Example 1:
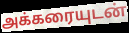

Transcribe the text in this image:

அக்கரையுடன்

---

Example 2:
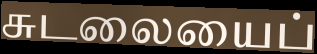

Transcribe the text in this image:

சுடலையைப்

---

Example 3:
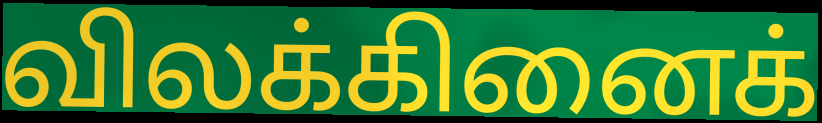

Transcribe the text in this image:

விலக்கினைக்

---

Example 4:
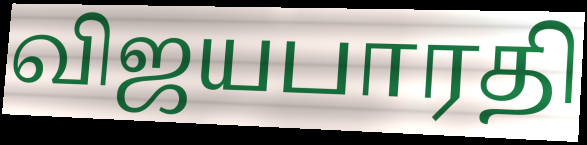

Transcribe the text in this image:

விஜயபாரதி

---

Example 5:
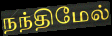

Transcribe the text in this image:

நந்திமேல்